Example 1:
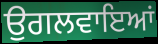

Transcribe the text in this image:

ਉਗਲਵਾਇਆਂ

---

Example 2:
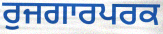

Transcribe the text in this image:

ਰੁਜਗਾਰਪਰਕ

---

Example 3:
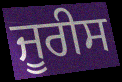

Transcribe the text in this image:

ਜੂਰੀਸ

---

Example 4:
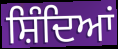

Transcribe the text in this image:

ਸ਼ਿੰਦਿਆਂ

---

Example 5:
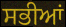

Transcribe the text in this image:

ਸਭੀਆਂ